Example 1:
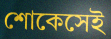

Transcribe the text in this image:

শোকেসেই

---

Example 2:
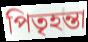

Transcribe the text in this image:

পিতৃহন্তা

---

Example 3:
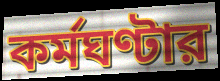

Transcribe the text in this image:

কর্মঘণ্টার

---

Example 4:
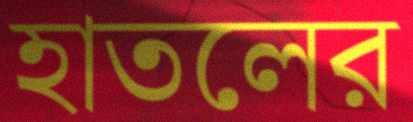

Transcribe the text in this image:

হাতলের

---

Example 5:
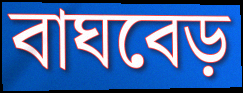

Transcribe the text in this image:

বাঘবেড়